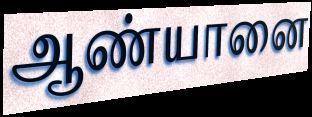
ஆண்யானை